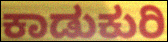
ಕಾಡುಕುರಿ